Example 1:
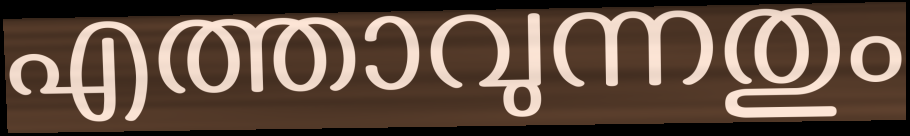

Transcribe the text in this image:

എത്താവുന്നതും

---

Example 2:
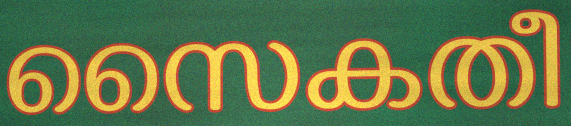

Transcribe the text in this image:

സൈകതീ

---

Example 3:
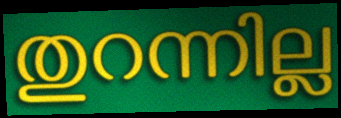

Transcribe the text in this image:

തുറന്നില്ല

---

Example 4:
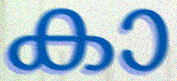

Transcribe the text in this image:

കാ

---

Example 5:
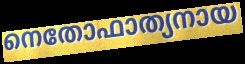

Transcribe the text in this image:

നെതോഫാത്യനായ